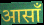
आसाँ